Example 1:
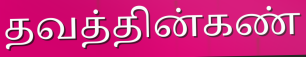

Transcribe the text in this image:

தவத்தின்கண்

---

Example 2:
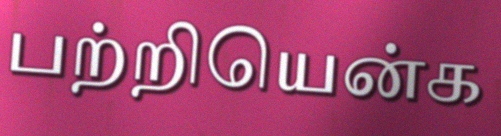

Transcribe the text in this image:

பற்றியென்க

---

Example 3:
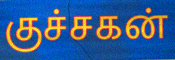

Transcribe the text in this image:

குச்சகன்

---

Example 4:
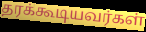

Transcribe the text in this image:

தரக்கூடியவர்கள்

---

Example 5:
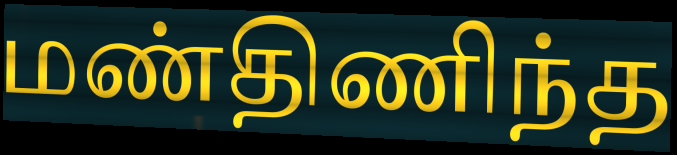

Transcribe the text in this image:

மண்திணிந்த